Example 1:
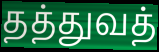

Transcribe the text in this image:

தத்துவத்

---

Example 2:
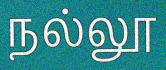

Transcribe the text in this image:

நல்லூ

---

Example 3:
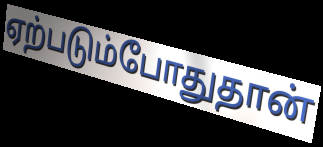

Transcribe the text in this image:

ஏற்படும்போதுதான்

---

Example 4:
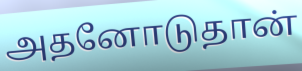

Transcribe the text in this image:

அதனோடுதான்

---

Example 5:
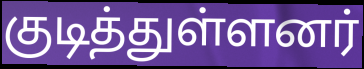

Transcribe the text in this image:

குடித்துள்ளனர்